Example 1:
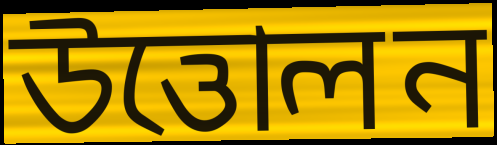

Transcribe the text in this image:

উত্তোলন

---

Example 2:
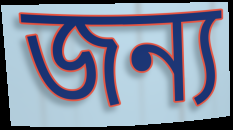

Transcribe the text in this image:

জন্য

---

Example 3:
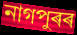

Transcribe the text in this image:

নাগপুৰৰ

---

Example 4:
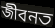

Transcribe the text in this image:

জীবনত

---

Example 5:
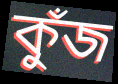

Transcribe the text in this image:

কুঁজ